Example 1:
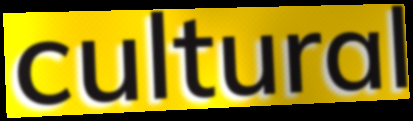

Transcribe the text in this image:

cultural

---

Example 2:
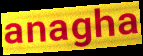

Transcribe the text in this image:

anagha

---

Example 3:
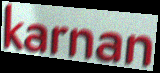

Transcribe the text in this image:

karnan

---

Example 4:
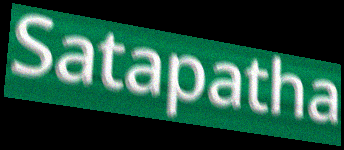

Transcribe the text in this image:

Satapatha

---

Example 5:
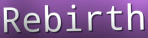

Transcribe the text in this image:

Rebirth